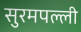
सुरमपल्ली